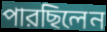
পারছিলেন